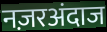
नज़रअंदाज